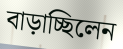
বাড়াচ্ছিলেন